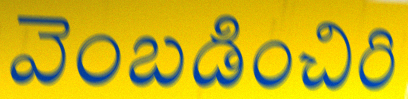
వెంబడించిరి